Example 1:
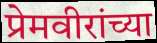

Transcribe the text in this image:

प्रेमवीरांच्या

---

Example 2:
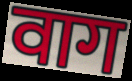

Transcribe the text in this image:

वाग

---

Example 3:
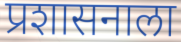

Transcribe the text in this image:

प्रशासनाला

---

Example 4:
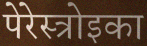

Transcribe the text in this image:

पेरेस्त्रोइका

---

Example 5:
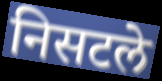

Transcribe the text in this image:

निसटले